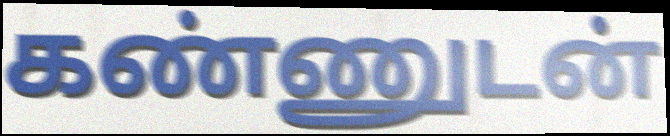
கண்ணுடன்